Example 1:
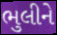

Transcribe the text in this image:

ભુલીને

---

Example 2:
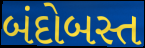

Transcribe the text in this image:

બંદોબસ્ત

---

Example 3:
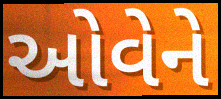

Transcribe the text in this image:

ઓવેને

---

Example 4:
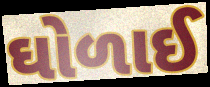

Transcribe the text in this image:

ઘોળાઈ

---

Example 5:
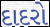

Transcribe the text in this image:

દાદરો